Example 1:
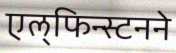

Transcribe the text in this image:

एल्फिन्स्टनने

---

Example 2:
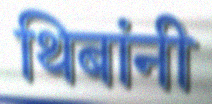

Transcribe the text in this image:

थिबांनी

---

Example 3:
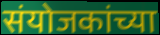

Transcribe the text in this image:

संयोजकांच्या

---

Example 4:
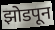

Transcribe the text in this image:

झोडपून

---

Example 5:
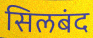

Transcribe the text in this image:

सिलबंद